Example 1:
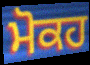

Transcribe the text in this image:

ਮੋਕਹ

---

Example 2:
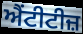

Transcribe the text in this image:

ਐਂਟੀਟੀਜ਼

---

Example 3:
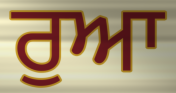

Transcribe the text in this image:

ਰੁਆ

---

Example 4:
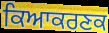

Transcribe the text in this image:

ਕਿਆਕਰਣਕ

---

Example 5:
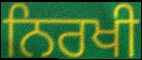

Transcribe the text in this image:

ਨਿਰਖੀ